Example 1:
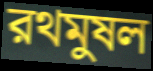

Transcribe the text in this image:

রথমুষল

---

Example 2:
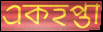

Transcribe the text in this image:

একহপ্তা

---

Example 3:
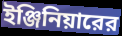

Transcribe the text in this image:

ইঞ্জিনিয়ারের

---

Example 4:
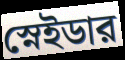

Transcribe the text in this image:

স্নেইডার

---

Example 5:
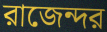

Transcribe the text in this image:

রাজেন্দর